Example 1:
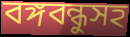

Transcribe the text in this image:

বঙ্গবন্ধুসহ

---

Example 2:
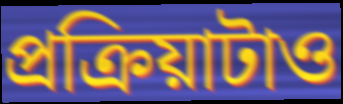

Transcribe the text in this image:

প্রক্রিয়াটাও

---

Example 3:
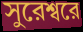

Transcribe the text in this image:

সুরেশ্বরে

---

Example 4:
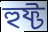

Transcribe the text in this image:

হুফ্ট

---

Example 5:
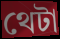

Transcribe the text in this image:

থেটা